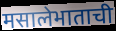
मसालेभाताची